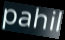
pahil